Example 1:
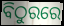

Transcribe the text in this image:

ବିଠୁରରେ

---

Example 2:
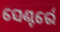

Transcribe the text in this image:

ସେଣ୍ଟର୍ରେ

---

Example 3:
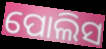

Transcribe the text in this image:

ପୋଲିସ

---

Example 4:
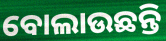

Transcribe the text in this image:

ବୋଲାଉଛନ୍ତି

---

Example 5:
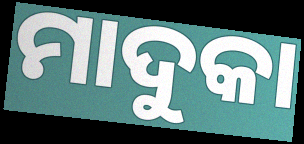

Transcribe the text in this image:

ମାଦୁକା